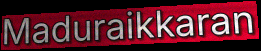
Maduraikkaran